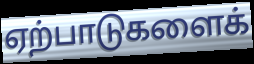
ஏற்பாடுகளைக்